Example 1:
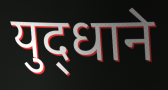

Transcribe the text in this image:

युद्धाने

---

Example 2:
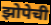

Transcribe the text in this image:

झोपेची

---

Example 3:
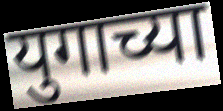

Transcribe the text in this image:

युगाच्या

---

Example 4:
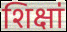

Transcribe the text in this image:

शिक्षा॑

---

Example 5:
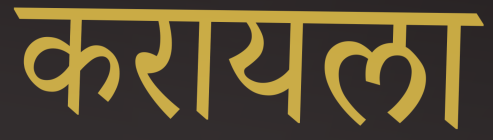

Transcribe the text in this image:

करायला